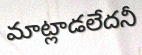
మాట్లాడలేదనీ